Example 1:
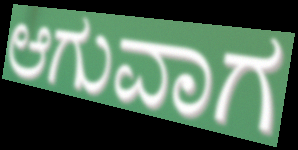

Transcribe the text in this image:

ಆಗುವಾಗ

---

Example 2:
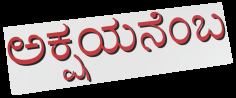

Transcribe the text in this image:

ಅಕ್ಷಯನೆಂಬ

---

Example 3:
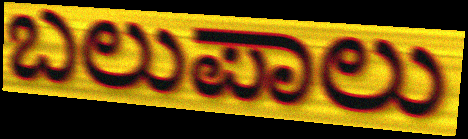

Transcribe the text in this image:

ಬಲುಪಾಲು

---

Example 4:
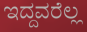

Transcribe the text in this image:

ಇದ್ದವರೆಲ್ಲ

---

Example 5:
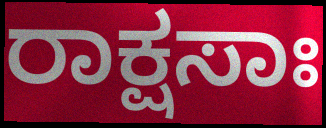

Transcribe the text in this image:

ರಾಕ್ಷಸಾಃ